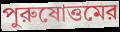
পুরুষোত্তমের